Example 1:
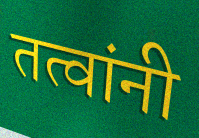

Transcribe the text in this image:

तत्वांनी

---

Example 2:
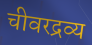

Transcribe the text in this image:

चीवरद्रव्य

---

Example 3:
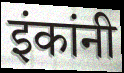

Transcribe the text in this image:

इंकांनी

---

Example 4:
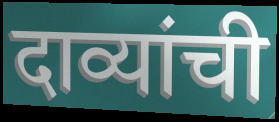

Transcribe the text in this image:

दाव्यांची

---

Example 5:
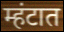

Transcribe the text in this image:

म्हंटात